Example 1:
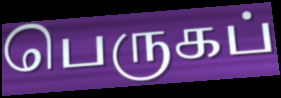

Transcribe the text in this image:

பெருகப்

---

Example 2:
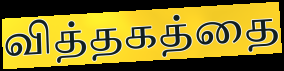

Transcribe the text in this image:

வித்தகத்தை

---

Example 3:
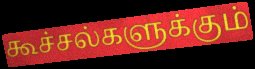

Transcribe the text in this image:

கூச்சல்களுக்கும்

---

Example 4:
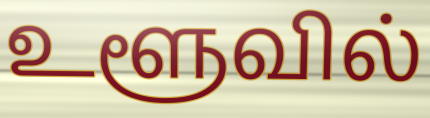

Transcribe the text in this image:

உளூவில்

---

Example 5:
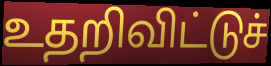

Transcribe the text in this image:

உதறிவிட்டுச்